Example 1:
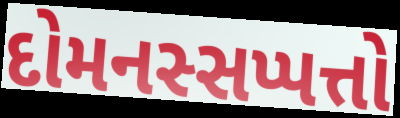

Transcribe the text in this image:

દોમનસ્સપ્પત્તો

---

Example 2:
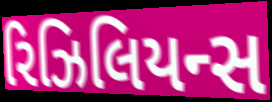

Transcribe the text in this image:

રિઝિલિયન્સ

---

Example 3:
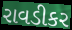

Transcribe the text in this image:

રાવડીકર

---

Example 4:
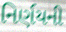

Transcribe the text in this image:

નિર્ણયની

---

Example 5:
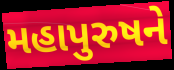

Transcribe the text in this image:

મહાપુરુષને